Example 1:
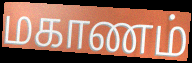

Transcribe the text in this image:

மகாணம்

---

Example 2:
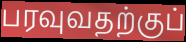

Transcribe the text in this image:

பரவுவதற்குப்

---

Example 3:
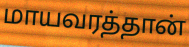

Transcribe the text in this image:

மாயவரத்தான்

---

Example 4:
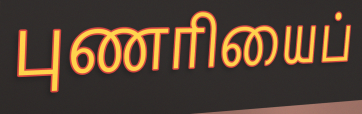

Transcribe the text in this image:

புணரியைப்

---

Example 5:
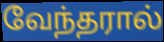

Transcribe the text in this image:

வேந்தரால்